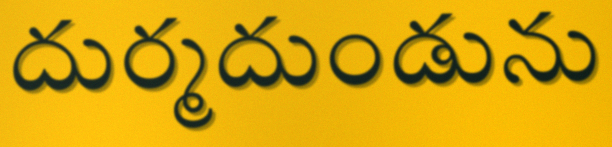
దుర్మదుండును